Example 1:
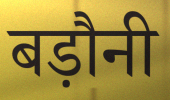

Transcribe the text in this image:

बड़ौनी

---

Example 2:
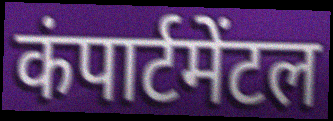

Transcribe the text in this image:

कंपार्टमेंटल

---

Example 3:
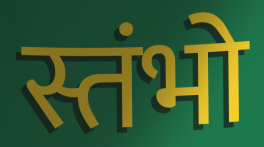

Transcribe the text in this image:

स्तंभो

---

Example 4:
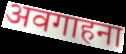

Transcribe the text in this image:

अवगाहना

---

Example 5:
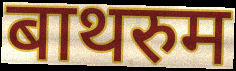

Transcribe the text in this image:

बाथरुम